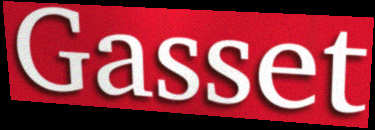
Gasset